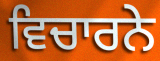
ਵਿਚਾਰਨੇ